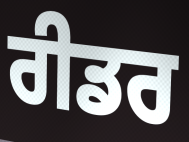
ਰੀਡਰ